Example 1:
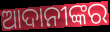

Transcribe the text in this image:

ଆଦାନୀଙ୍କର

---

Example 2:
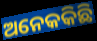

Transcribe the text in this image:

ଅନେକକିଛି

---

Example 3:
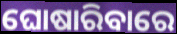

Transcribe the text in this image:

ଘୋଷାରିବାରେ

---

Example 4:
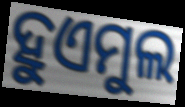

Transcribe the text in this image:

ହୁଏମୁଲ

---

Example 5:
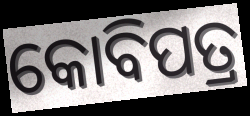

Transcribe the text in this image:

କୋବିପତ୍ର